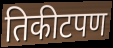
तिकीटपण